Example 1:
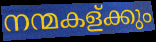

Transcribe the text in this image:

നന്മകള്ക്കും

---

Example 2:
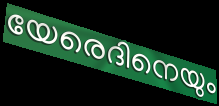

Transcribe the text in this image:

യേരെദിനെയും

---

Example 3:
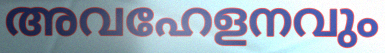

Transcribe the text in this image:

അവഹേളനവും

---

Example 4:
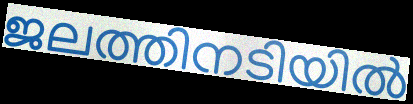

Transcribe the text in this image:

ജലത്തിനടിയിൽ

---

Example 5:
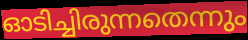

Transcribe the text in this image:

ഓടിച്ചിരുന്നതെന്നും